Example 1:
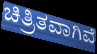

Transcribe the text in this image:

ಚಿತ್ರಿತವಾಗಿವೆ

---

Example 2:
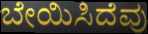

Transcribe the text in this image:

ಬೇಯಿಸಿದೆವು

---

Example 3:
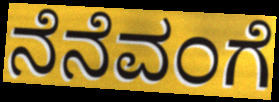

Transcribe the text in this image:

ನೆನೆವಂಗೆ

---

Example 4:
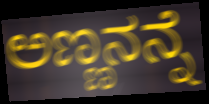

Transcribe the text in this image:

ಅಣ್ಣನನ್ನೆ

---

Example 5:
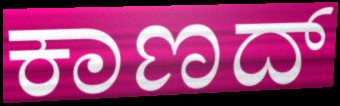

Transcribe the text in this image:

ಕಾಣದ್